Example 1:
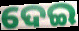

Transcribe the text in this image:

ଦେଇ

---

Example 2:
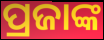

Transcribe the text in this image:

ପ୍ରଜାଙ୍କ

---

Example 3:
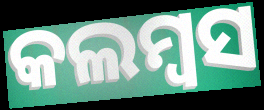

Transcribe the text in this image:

କଲମ୍ବସ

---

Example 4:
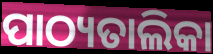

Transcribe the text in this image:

ପାଠ୍ୟତାଲିକା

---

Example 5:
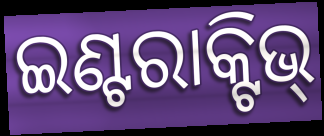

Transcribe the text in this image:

ଇଣ୍ଟରାକ୍ଟିଭ୍